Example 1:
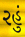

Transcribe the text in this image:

રહું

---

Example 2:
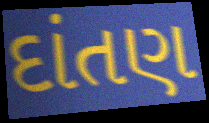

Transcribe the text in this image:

દાંતણ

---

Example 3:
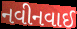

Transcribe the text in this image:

નવીનવાઈ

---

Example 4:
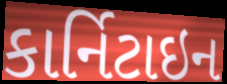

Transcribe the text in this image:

કાર્નિટાઇન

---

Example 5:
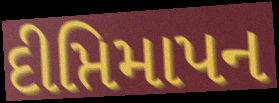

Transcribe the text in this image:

દીપ્તિમાપન